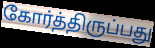
கோர்த்திருப்பது